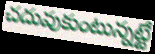
చదువుకుంటున్నట్టే